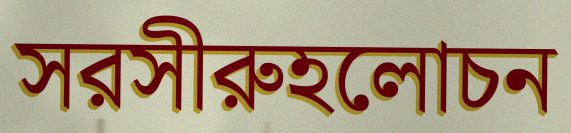
সরসীরুহলোচন